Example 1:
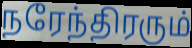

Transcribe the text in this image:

நரேந்திரரும்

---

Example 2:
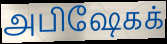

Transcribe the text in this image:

அபிஷேகக்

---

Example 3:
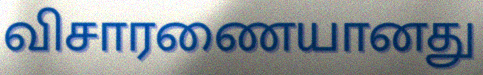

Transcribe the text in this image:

விசாரணையானது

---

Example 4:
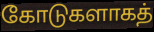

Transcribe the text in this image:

கோடுகளாகத்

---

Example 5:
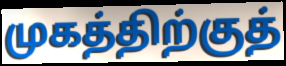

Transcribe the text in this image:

முகத்திற்குத்